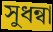
সুধন্বা